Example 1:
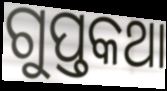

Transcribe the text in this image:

ଗୁପ୍ତକଥା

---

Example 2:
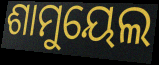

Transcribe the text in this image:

ଶାମୁୟେଲ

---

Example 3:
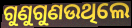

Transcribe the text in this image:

ଗୁଣୁଗୁଣଉଥିଲେ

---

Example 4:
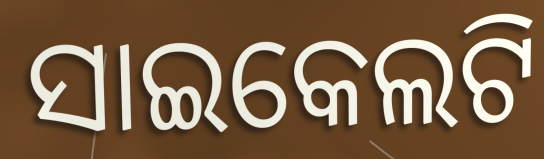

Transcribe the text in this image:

ସାଇକେଲଟି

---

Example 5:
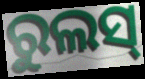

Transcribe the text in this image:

ରୁଲସ୍